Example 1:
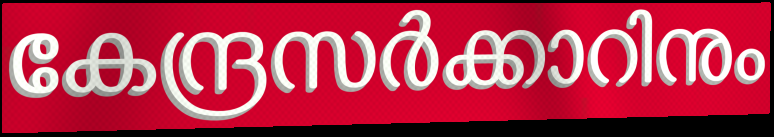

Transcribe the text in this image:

കേന്ദ്രസർക്കാറിനും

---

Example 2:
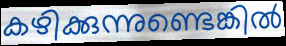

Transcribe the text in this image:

കഴിക്കുന്നുണ്ടെങ്കിൽ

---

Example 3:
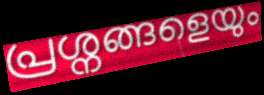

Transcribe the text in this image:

പ്രശ്നങ്ങളെയും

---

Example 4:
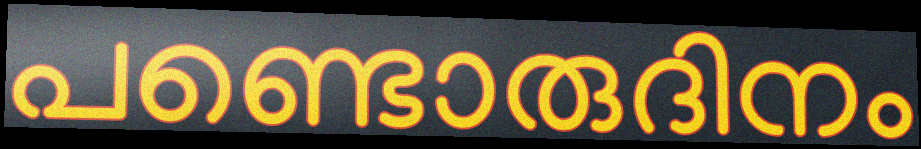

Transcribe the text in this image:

പണ്ടൊരുദിനം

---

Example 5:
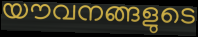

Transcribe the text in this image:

യൗവനങ്ങളുടെ